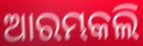
ଆରମ୍ଭକଲି